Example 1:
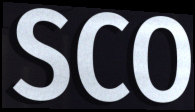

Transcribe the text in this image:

SCO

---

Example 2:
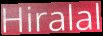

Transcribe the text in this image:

Hiralal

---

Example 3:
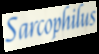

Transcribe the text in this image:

Sarcophilus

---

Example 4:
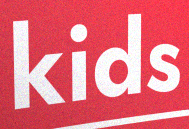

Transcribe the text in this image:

kids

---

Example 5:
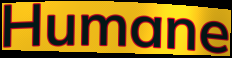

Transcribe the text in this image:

Humane